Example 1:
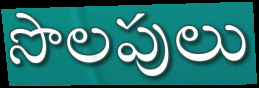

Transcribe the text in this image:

సొలపులు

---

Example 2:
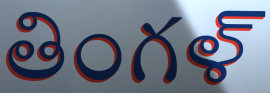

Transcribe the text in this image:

తింగళ్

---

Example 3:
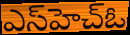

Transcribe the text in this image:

ఎస్‌హెచ్ఓ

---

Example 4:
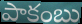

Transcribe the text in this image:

పాకంబు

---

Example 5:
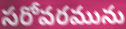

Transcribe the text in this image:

సరోవరమును